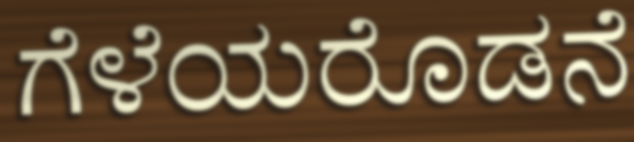
ಗೆಳೆಯರೊಡನೆ